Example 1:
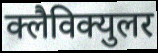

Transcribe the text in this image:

क्लैविक्युलर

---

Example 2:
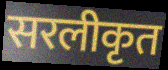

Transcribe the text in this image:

सरलीकृत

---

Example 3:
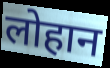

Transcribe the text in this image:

लोहान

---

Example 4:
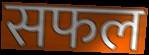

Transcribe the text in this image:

सफल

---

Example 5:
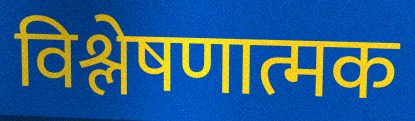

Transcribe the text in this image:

विश्लेषणात्मक